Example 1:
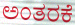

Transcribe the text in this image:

ಅಂತರಕೆ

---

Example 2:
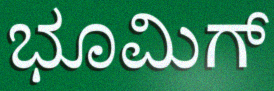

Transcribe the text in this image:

ಭೂಮಿಗ್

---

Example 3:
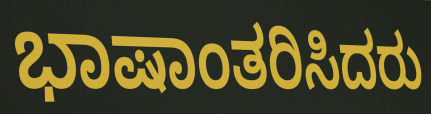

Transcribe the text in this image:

ಭಾಷಾಂತರಿಸಿದರು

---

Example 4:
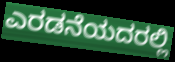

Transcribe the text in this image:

ಎರಡನೆಯದರಲ್ಲಿ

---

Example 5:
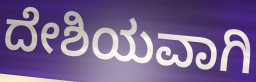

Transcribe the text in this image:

ದೇಶಿಯವಾಗಿ